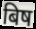
बिष